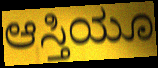
ಆಸ್ತಿಯೂ